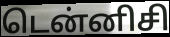
டென்னிசி